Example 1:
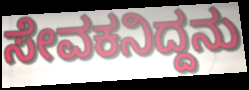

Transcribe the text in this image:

ಸೇವಕನಿದ್ದನು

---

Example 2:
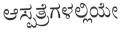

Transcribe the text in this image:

ಆಸ್ಪತ್ರೆಗಳಲ್ಲಿಯೇ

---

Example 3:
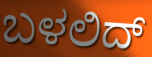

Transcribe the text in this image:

ಬಳಲಿದ್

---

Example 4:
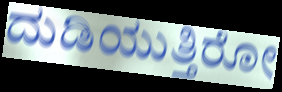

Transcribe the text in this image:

ದುಡಿಯುತ್ತಿರೋ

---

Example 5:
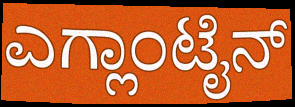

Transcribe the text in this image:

ಎಗ್ಲಾಂಟೈನ್